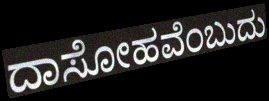
ದಾಸೋಹವೆಂಬುದು